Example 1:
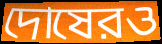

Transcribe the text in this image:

দোষেরও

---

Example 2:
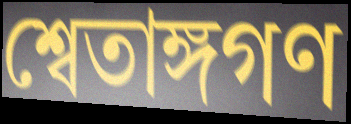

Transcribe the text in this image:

শ্বেতাঙ্গগণ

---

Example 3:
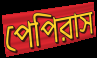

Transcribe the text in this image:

পেপিরাস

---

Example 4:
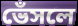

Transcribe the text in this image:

ভেঁসলে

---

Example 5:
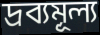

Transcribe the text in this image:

দ্রব্যমূল্য